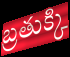
బ్రతుక్కి